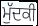
ਮੁੱਦਕੀ